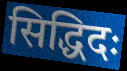
सिद्धिदः